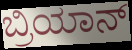
ಬ್ರಿಯಾನ್